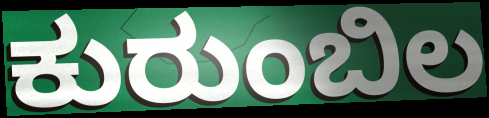
ಕುರುಂಬಿಲ